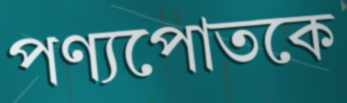
পণ্যপোতকে